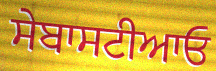
ਸੇਬਾਸਟੀਆਓ